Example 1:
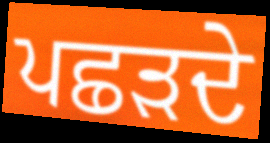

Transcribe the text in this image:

ਪਛੜਦੇ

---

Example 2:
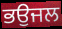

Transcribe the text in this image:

ਭਉਜਲ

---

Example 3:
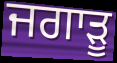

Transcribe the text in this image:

ਜਗਾੜੂ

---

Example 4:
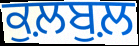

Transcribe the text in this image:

ਕੁਲ਼ਬੁਲ਼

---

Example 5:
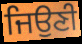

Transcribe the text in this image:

ਜਿਉਣੀ